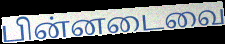
பின்னடைவை